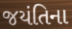
જયંતિના